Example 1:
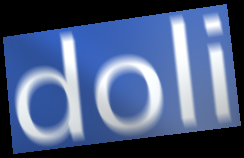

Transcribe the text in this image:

doli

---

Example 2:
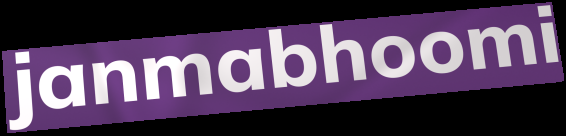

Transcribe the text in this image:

janmabhoomi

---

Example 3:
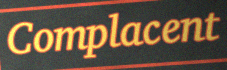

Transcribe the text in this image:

Complacent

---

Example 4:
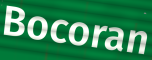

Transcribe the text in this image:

Bocoran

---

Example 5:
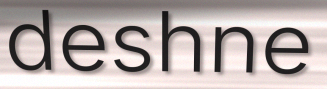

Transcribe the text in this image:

deshne